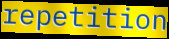
repetition